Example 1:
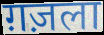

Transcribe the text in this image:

ग़ज़ला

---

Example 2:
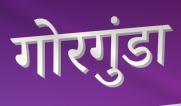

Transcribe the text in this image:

गोरगुंडा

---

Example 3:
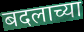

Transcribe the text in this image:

बदलाच्या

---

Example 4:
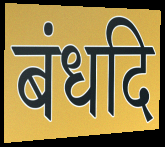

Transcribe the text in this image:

बंधदि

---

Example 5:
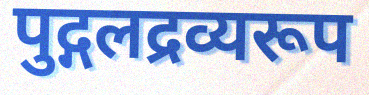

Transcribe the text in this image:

पुद्गलद्रव्यरूप